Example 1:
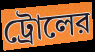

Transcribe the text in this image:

ট্রোলের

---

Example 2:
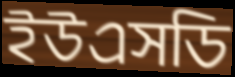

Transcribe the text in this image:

ইউএসডি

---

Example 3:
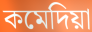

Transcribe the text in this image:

কমেদিয়া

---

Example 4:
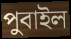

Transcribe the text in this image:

পুবাইল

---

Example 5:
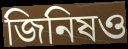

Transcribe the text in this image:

জিনিষও